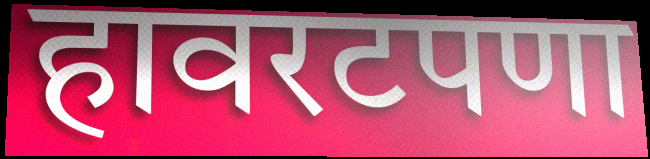
हावरटपणा